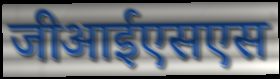
जीआईएसएस